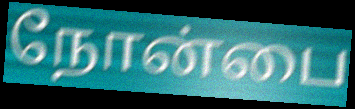
நோன்பை